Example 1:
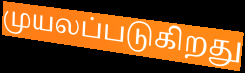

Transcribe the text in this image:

முயலப்படுகிறது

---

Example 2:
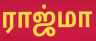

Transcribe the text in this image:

ராஜ்மா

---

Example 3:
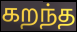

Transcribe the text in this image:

கறந்த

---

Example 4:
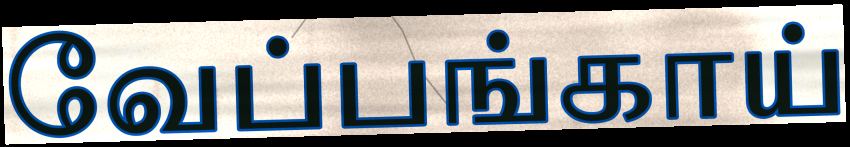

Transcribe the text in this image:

வேப்பங்காய்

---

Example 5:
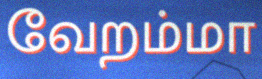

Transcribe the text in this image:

வேறம்மா